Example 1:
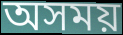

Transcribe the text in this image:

অসময়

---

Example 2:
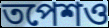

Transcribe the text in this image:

তপেশও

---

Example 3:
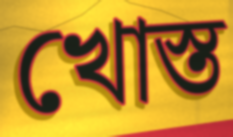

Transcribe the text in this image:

খোস্ত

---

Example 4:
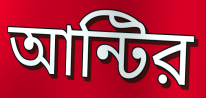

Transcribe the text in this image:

আন্টির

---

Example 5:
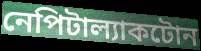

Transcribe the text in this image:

নেপিটাল্যাকটোন